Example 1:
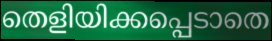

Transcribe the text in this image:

തെളിയിക്കപ്പെടാതെ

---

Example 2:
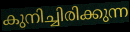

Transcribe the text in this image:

കുനിച്ചിരിക്കുന്ന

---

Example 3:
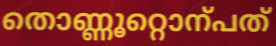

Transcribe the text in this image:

തൊണ്ണൂറ്റൊന്പത്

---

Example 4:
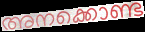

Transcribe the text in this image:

അനക്കൊണ്ട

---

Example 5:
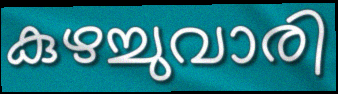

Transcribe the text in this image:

കുഴച്ചുവാരി